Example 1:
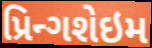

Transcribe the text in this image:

પ્રિન્ગશેઇમ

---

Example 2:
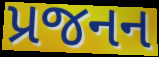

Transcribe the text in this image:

પ્રજનન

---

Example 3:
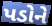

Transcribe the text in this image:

પડોને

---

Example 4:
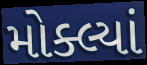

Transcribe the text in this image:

મોક્લ્યાં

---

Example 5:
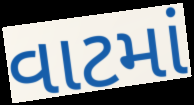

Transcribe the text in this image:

વાટમાં